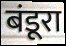
बंडूरा